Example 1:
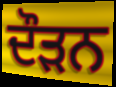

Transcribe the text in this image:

ਦੌਡ਼ਨ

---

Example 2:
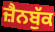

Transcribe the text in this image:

ਜ਼ੈਨਬੁੱਕ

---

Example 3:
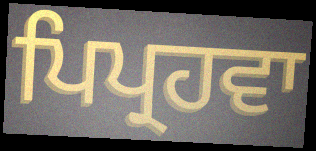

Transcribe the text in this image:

ਪਿਪ੍ਰਹਵਾ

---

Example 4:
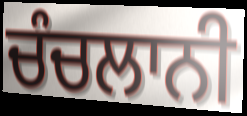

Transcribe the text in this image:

ਚੰਚਲਾਨੀ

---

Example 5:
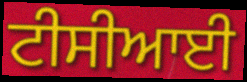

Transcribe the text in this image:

ਟੀਸੀਆਈ